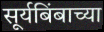
सूर्यबिंबाच्या